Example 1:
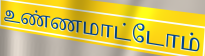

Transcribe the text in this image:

உண்ணமாட்டோம்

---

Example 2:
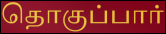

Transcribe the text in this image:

தொகுப்பார்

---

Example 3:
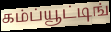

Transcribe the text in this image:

கம்ப்யூட்டிங்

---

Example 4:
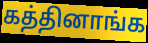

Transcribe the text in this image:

கத்தினாங்க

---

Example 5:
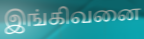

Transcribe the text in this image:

இங்கிவனை